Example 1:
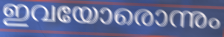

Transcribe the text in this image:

ഇവയോരൊന്നും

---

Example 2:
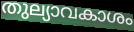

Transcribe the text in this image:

തുല്യാവകാശം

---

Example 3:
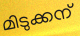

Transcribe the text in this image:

മിടുക്കന്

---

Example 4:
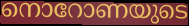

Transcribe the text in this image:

നൊറോണയുടെ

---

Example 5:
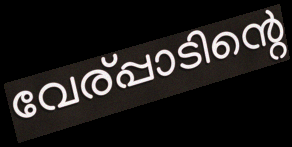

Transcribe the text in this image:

വേര്പ്പാടിന്റെ